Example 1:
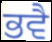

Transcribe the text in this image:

ਭਵੈ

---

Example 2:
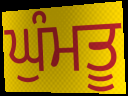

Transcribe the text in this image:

ਘੁੰਮਤੂ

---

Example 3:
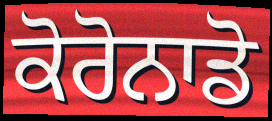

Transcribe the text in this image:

ਕੋਰੋਨਾਡੋ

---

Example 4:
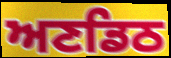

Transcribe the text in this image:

ਅਣਡਿਠ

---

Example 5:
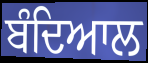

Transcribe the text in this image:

ਬੰਦਿਆਲ